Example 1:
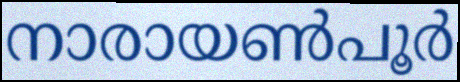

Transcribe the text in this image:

നാരായൺപൂർ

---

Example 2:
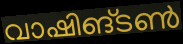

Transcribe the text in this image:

വാഷിങ്ടൺ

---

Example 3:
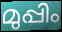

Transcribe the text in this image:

മുപ്പിം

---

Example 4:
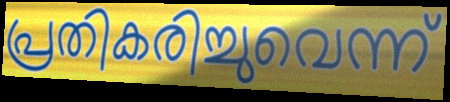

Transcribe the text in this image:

പ്രതികരിച്ചുവെന്ന്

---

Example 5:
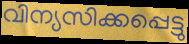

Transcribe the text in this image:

വിന്യസിക്കപ്പെട്ടു